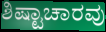
ಶಿಷ್ಟಾಚಾರವು